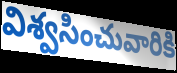
విశ్వసించువారికి